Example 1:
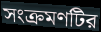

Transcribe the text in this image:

সংক্রমণটির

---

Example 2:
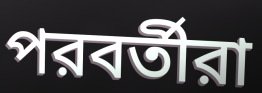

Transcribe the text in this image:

পরবর্তীরা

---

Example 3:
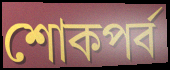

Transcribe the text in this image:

শোকপর্ব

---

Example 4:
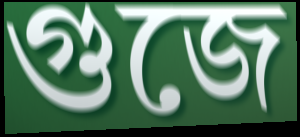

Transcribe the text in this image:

গুজে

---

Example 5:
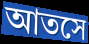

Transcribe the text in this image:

আতসে